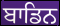
ਬਾਡਿਨ